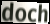
doch